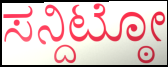
ಸನ್ದಿಟ್ಠೋ